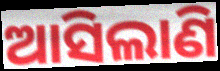
ଆସିଲାଣି